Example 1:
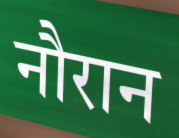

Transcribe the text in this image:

नौरान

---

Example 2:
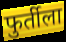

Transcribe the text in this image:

फुर्तीला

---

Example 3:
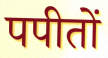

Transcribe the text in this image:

पपीतों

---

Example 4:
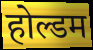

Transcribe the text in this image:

होल्डम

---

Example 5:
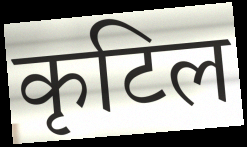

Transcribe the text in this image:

कृटिल